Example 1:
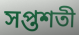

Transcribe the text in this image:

সপ্তশতী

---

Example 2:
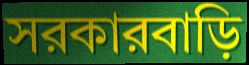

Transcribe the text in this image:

সরকারবাড়ি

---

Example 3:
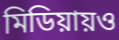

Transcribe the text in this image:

মিডিয়ায়ও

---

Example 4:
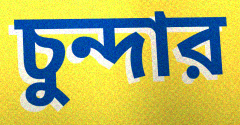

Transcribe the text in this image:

চুন্দার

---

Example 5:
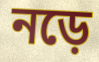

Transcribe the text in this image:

নড়ে